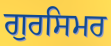
ਗੁਰਸਿਮਰ